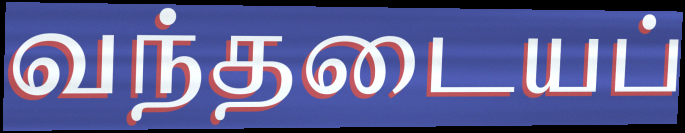
வந்தடையப்